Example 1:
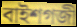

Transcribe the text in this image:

বাইশগজী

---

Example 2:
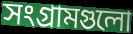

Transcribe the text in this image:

সংগ্রামগুলো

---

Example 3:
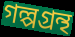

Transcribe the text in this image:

গল্পগ্রন্থ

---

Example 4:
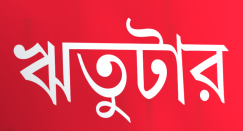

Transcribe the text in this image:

ঋতুটার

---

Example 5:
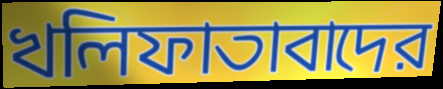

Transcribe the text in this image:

খলিফাতাবাদের